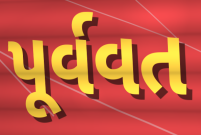
પૂર્વવત